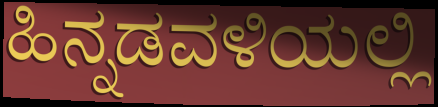
ಹಿನ್ನಡವಳಿಯಲ್ಲಿ